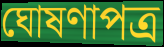
ঘোষণাপত্র